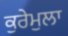
ਕੁਰੇਮੁਲਾ